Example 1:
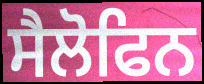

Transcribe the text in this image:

ਸੈਲੋਫਿਨ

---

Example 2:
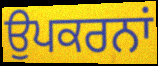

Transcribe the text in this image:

ਉਪਕਰਨਾਂ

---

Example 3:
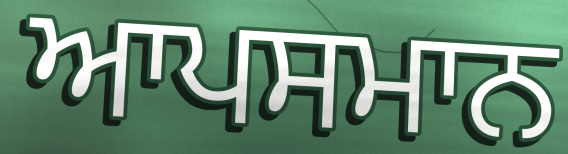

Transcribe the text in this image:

ਆਪਸਮਾਨ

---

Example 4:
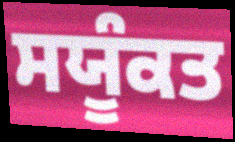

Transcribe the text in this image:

ਸਯੂੰਕਤ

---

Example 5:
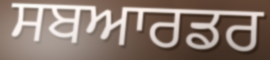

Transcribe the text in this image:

ਸਬਆਰਡਰ